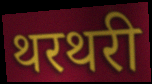
थरथरी